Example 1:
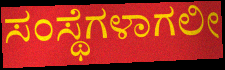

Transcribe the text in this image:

ಸಂಸ್ಥೆಗಳಾಗಲೀ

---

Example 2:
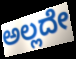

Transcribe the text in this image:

ಅಲ್ಲದೇ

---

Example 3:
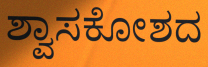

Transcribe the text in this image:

ಶ್ವಾಸಕೋಶದ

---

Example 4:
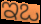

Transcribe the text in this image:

ಇಒ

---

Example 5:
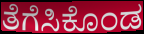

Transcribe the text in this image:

ತೆಗೆಸಿಕೊಂಡ